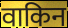
वाकिन